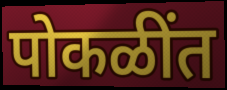
पोकळींत